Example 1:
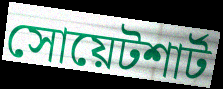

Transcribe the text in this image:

সোয়েটশার্ট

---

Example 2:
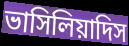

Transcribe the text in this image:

ভাসিলিয়াদিস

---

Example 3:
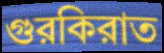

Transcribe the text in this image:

গুরকিরাত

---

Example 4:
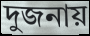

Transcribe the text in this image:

দুজনায়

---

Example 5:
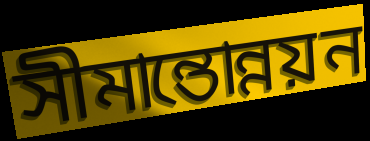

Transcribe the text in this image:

সীমান্তোন্নয়ন